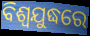
ବିଶ୍ଵଯୁଦ୍ଧରେ